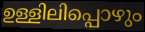
ഉള്ളിലിപ്പൊഴും